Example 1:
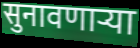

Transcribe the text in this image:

सुनावणाऱ्या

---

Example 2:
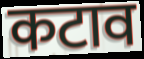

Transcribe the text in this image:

कटाव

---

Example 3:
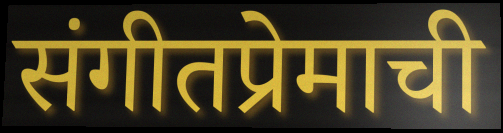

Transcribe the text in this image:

संगीतप्रेमाची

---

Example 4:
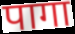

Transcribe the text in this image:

पागा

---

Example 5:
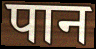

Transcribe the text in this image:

पान